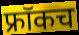
फ्रॉकच